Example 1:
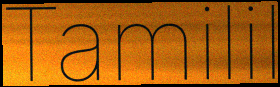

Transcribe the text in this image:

Tamilil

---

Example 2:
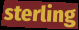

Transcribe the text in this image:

sterling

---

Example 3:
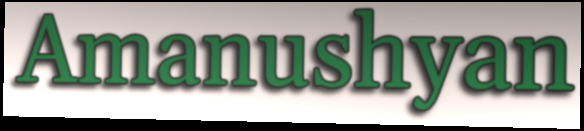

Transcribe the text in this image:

Amanushyan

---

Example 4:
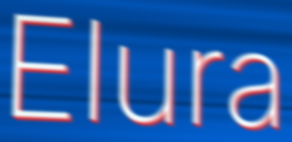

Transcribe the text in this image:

Elura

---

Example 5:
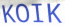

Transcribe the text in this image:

KOIK